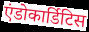
एंडोकार्डिटिस